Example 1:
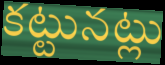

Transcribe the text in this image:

కట్టునట్లు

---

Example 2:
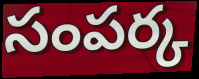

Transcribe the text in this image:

సంపర్క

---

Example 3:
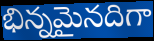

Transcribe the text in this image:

భిన్నమైనదిగా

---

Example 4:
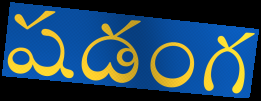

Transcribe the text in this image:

షడంగ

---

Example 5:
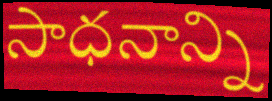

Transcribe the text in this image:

సాధనాన్ని